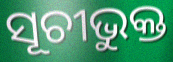
ସୂଚୀଭୁକ୍ତ